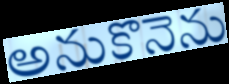
అనుకొనెను